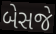
બેસજે